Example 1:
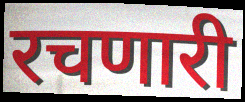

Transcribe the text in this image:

रचणारी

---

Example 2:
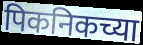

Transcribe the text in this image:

पिकनिकच्या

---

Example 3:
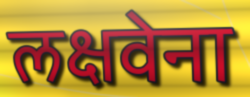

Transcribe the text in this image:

लक्षवेना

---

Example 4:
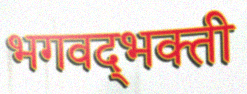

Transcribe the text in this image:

भगवद्‌भक्ती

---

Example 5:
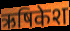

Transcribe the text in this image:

ऋषिकेश